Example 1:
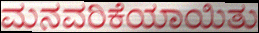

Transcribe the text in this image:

ಮನವರಿಕೆಯಾಯಿತು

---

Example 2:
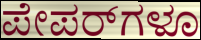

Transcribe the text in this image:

ಪೇಪರ್‌ಗಳೂ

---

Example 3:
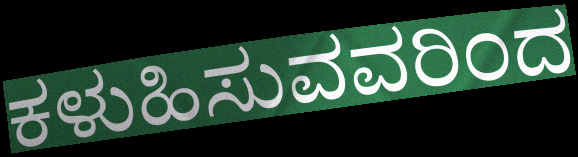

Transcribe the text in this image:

ಕಳುಹಿಸುವವರಿಂದ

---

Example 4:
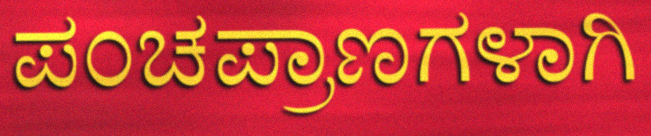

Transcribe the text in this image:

ಪಂಚಪ್ರಾಣಗಳಾಗಿ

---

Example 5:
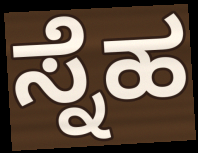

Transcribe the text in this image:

ಸ್ನೆಹ